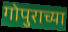
गोपुराच्या